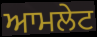
ਆਮਲੇਟ